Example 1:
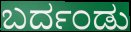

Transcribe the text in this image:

ಬರ್ದಂಡು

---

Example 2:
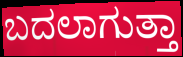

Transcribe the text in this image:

ಬದಲಾಗುತ್ತಾ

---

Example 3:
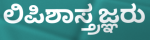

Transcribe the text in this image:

ಲಿಪಿಶಾಸ್ತ್ರಜ್ಞರು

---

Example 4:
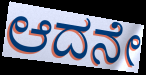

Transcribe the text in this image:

ಆದನೇ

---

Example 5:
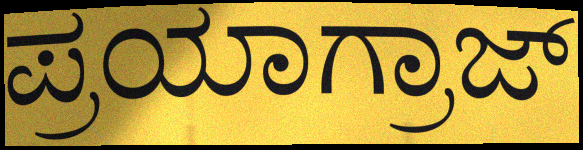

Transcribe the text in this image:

ಪ್ರಯಾಗ್ರಾಜ್